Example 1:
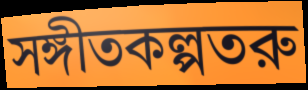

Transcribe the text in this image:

সঙ্গীতকল্পতরু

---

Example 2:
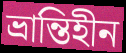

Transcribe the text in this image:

ভ্রান্তিহীন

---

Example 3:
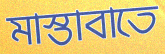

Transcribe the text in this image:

মাস্তাবাতে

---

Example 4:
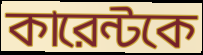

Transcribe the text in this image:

কারেন্টকে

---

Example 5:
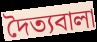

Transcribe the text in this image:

দৈত্যবালা